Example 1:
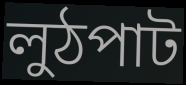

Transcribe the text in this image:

লুঠপাট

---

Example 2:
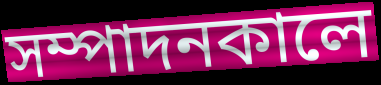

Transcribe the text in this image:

সম্পাদনকালে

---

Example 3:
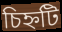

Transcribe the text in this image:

চিহ্নটি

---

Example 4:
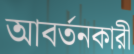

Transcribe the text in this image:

আবর্তনকারী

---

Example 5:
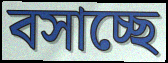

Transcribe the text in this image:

বসাচ্ছে